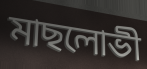
মাছলোভী